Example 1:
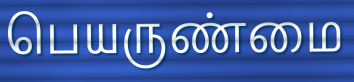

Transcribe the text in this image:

பெயருண்மை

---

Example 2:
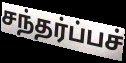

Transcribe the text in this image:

சந்தர்ப்பச்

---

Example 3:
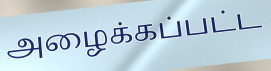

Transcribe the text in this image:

அழைக்கப்பட்ட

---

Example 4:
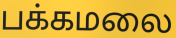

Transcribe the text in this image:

பக்கமலை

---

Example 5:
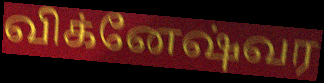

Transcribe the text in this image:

விக்னேஷ்வர